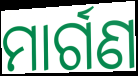
ମାର୍ଗଣ